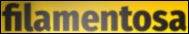
filamentosa